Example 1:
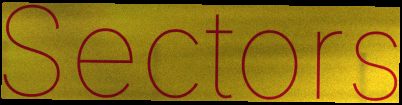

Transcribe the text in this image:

Sectors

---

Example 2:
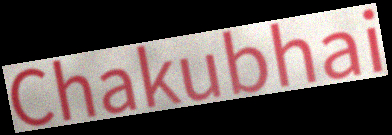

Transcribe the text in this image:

Chakubhai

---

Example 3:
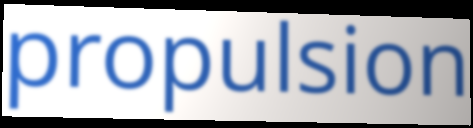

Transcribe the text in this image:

propulsion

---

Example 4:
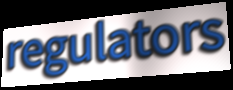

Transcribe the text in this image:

regulators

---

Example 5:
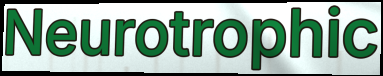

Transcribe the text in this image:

Neurotrophic